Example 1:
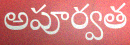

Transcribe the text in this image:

అపూర్వత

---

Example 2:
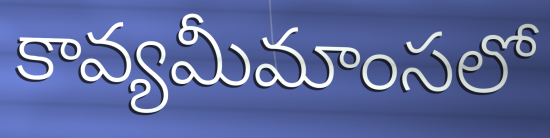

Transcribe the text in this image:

కావ్యమీమాంసలో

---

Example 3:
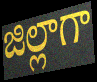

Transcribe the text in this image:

జిల్లాగా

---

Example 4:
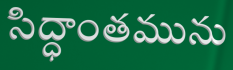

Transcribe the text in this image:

సిద్ధాంతమును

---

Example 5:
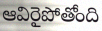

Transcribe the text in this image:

ఆవిరైపోతోంది